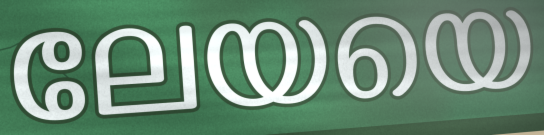
ലേയയെ